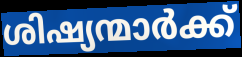
ശിഷ്യന്മാർക്ക്